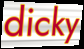
dicky